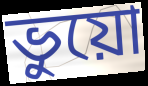
ভুয়ো